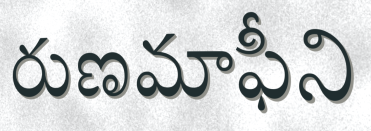
రుణమాఫీని